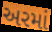
અરમાં